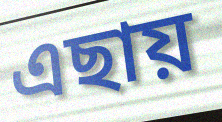
এছায়